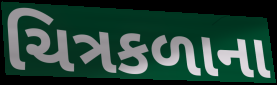
ચિત્રકળાના